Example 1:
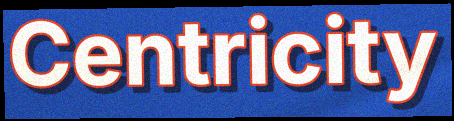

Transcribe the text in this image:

Centricity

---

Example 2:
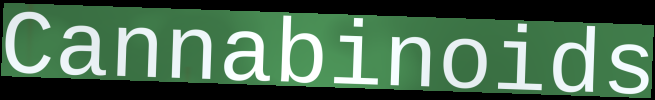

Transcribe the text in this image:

Cannabinoids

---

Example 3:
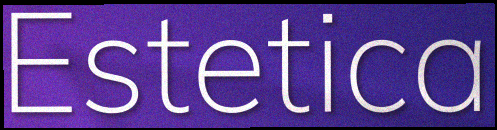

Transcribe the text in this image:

Estetica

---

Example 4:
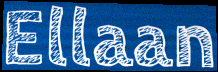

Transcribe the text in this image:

Ellaan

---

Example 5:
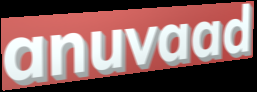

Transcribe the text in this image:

anuvaad